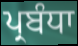
ਪ੍ਰਬੰਧਾ